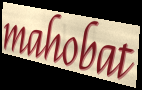
mahobat